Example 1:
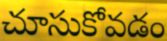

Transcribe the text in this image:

చూసుకోవడం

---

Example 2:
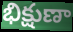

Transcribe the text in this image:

భిక్షుణా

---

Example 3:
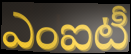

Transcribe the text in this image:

ఎంఐటీ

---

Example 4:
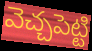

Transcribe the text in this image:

వెచ్చపెట్టి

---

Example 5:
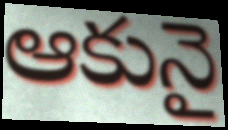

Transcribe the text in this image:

ఆకునై